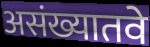
असंख्यातवे